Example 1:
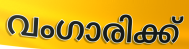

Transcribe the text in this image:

വംഗാരിക്ക്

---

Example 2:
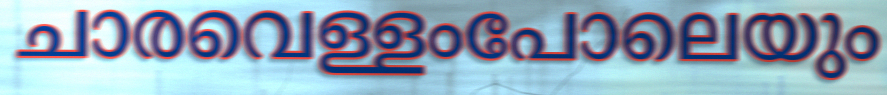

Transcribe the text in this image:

ചാരവെള്ളംപോലെയും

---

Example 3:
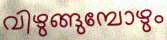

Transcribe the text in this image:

വിഴുങ്ങുമ്പോഴും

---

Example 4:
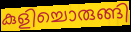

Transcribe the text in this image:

കുളിച്ചൊരുങ്ങി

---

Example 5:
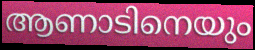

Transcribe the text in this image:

ആണാടിനെയും